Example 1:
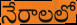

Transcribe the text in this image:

నేరాలలో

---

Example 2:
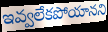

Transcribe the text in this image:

ఇవ్వలేకపోయానని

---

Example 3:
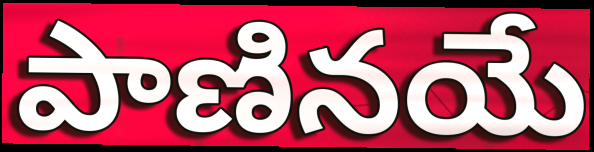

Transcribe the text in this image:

పాణినయే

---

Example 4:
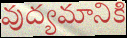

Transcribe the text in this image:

వుద్యమానికి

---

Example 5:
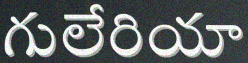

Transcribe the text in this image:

గులేరియా